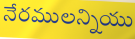
నేరములన్నియు